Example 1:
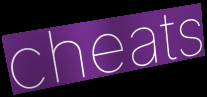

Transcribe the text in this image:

cheats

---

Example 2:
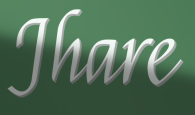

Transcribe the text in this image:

Jhare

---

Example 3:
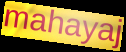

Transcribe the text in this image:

mahayaj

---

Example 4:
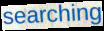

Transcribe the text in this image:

searching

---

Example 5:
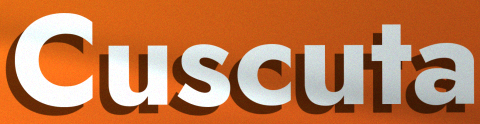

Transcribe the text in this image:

Cuscuta